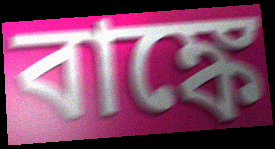
বাঙ্কে